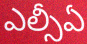
ఎల్సీఏ